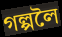
গল্পলৈ